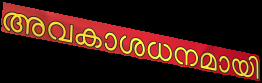
അവകാശധനമായി